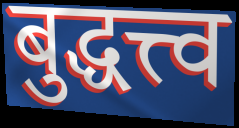
बुद्धत्त्व